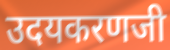
उदयकरणजी